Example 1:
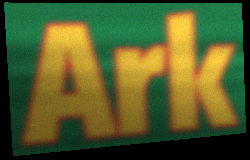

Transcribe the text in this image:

Ark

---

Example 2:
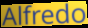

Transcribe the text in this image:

Alfredo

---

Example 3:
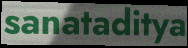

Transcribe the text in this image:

sanataditya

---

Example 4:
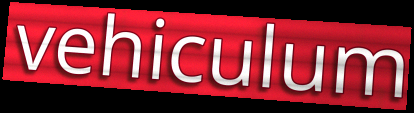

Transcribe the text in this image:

vehiculum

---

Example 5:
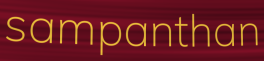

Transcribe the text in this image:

sampanthan